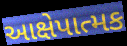
આક્ષેપાત્મક